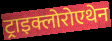
ट्राइक्लोरोएथेन